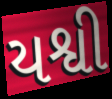
યશ્વી